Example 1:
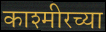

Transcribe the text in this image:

काश्मीरच्या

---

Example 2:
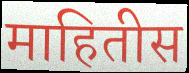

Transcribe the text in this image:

माहितीस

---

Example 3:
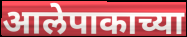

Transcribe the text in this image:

आलेपाकाच्या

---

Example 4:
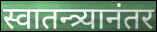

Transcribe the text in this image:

स्वातन्त्र्यानंतर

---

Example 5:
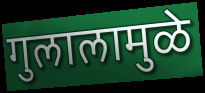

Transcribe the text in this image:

गुलालामुळे